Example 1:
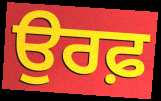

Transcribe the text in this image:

ਉਰਫ਼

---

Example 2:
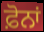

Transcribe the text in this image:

ਫ਼ੋਨਾਂ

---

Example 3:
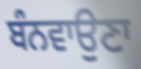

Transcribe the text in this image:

ਬੰਨਵਾਉਣਾ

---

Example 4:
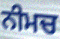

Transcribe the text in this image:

ਨੀਮਚ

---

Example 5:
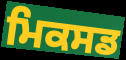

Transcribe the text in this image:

ਮਿਕਸਡ